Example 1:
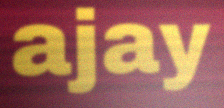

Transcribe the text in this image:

ajay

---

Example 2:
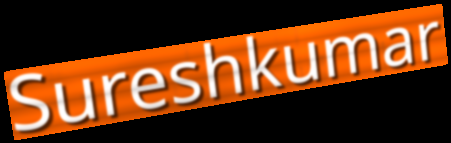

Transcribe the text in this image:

Sureshkumar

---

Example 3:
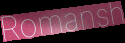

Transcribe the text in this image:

Romansh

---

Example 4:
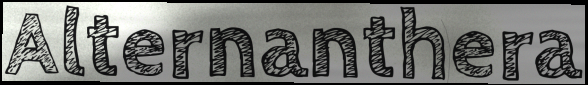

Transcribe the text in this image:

Alternanthera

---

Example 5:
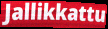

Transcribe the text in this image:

Jallikkattu